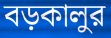
বড়কালুর